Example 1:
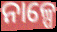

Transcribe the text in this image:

ନାଳ୍ପେ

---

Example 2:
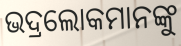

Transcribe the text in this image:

ଭଦ୍ରଲୋକମାନଙ୍କୁ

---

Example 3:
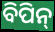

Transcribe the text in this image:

ବିପିନ୍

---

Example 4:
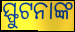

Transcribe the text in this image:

ସ୍ଫୁଟନାଙ୍କ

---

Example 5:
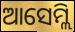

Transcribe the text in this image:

ଆସେମ୍ଲି